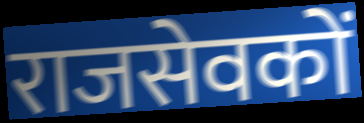
राजसेवकों